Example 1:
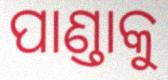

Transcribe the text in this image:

ପାଣ୍ଡାକୁ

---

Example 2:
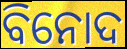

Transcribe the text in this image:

ବିନୋଦ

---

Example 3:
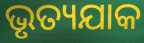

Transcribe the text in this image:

ଭୃତ୍ୟଯାକ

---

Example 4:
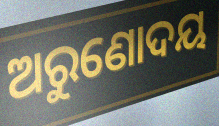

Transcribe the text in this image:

ଅରୁଣୋଦୟ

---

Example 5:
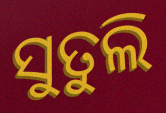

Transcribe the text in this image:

ସୁତୁଲି